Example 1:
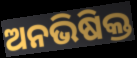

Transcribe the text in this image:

ଅନଭିଷିକ୍ତ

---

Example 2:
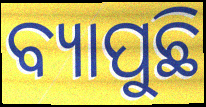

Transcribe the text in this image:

ବ୍ୟାପୁଛି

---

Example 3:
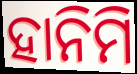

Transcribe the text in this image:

ହାନିମି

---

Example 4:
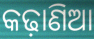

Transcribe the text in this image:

କଢ଼ାଣିଆ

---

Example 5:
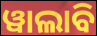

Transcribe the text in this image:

ୱାଲାବି